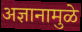
अज्ञानामुळे